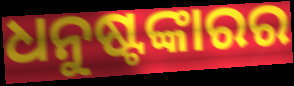
ଧନୁଷ୍ଟଙ୍କାରର